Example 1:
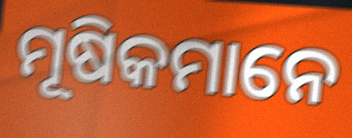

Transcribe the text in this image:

ମୂଷିକମାନେ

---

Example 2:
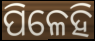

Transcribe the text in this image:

ପିଳେହି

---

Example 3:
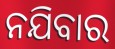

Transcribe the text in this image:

ନଯିବାର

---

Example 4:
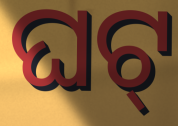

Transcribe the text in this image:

ଘଟ୍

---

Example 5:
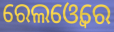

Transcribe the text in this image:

ରେଲଓ୍ୱେରେ